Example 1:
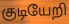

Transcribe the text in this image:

குடியேறி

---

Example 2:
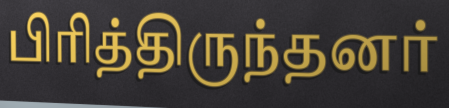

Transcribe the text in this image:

பிரித்திருந்தனர்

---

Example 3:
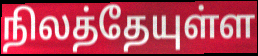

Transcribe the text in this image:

நிலத்தேயுள்ள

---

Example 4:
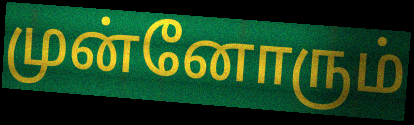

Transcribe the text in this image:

முன்னோரும்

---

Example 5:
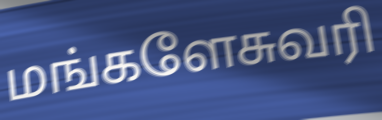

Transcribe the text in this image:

மங்களேசுவரி